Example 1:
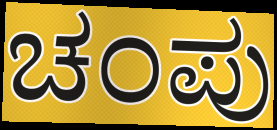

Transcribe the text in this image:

ಚಂಪು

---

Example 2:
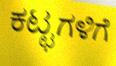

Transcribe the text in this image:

ಕಟ್ಟಗಳಿಗೆ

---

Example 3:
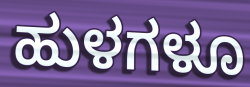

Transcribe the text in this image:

ಹುಳಗಳೂ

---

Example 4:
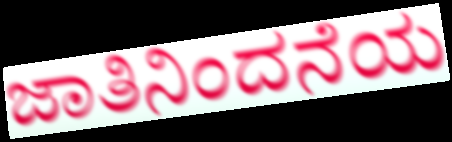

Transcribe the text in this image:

ಜಾತಿನಿಂದನೆಯ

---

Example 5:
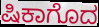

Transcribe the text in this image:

ಷಿಕಾಗೊದ